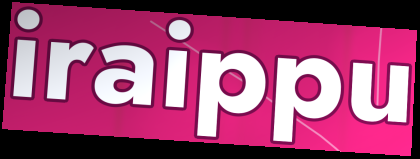
iraippu